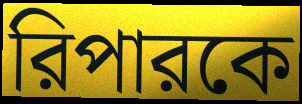
রিপারকে